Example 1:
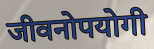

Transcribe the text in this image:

जीवनोपयोगी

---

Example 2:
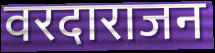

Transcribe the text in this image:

वरदाराजन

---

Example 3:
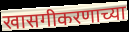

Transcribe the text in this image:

खासगीकरणाच्या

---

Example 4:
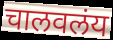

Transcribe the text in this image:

चालवलंय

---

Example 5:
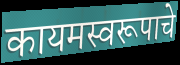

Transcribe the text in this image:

कायमस्वरूपाचे